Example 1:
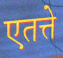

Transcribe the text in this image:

एतत्ते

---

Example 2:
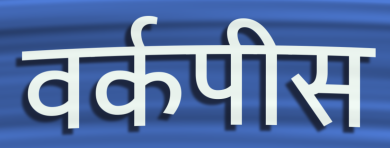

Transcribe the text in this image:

वर्कपीस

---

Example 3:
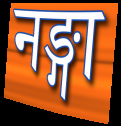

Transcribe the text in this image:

नङ्गा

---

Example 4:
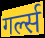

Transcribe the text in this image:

गर्ल्स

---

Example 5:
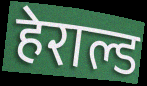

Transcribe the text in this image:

हेराल्ड